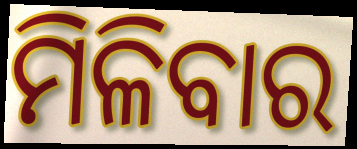
ମିଳିବାର